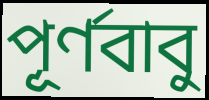
পূর্ণবাবু